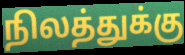
நிலத்துக்கு